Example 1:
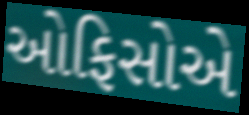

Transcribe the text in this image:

ઓફિસોએ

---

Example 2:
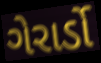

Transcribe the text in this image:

ગેરાર્ડો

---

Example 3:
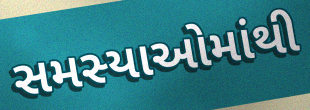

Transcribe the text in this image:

સમસ્યાઓમાંથી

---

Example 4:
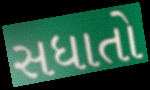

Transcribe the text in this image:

સધાતો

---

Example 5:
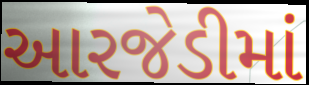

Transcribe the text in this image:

આરજેડીમાં